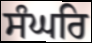
ਸੰਘਰਿ